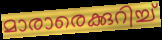
മാരാരെക്കുറിച്ച്